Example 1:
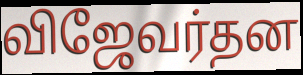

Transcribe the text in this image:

விஜேவர்தன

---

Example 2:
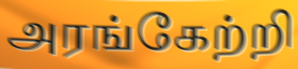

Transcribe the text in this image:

அரங்கேற்றி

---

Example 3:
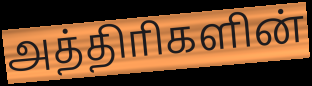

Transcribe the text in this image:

அத்திரிகளின்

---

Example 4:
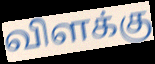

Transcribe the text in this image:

விளக்கு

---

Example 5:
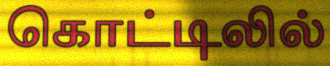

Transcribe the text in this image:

கொட்டிலில்